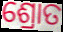
ଶ୍ରୋତ